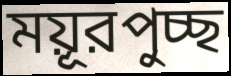
ময়ূরপুচ্ছ